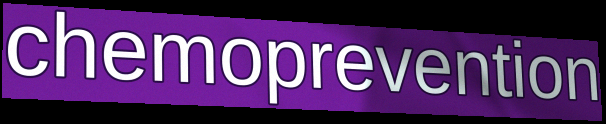
chemoprevention